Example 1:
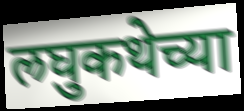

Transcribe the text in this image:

लघुकथेच्या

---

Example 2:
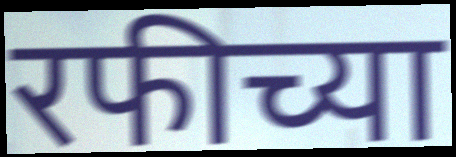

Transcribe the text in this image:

रफीच्या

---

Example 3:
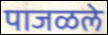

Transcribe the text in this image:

पाजळले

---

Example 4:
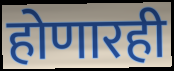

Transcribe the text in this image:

होणारही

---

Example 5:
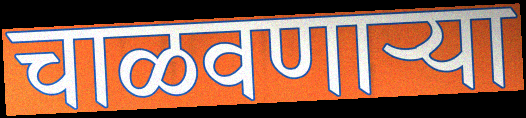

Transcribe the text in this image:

चाळवणाऱ्या